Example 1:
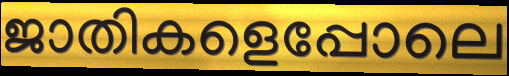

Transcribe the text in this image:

ജാതികളെപ്പോലെ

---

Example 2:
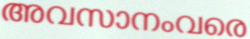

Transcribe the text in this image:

അവസാനംവരെ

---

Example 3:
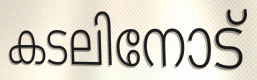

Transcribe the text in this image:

കടലിനോട്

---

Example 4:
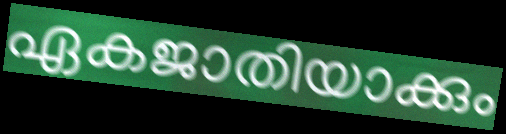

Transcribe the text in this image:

ഏകജാതിയാക്കും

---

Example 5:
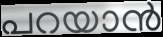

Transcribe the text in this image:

പറയാൻ